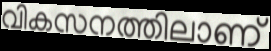
വികസനത്തിലാണ്